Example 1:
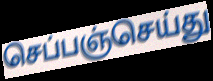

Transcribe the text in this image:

செப்பஞ்செய்து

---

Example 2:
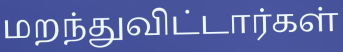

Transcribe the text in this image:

மறந்துவிட்டார்கள்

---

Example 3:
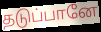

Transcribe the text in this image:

தடுப்பானே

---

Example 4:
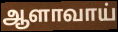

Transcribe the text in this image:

ஆளாவாய்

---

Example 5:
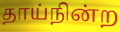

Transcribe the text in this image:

தாய்நின்ற